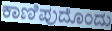
ಕಾಣಿಪುದೊಂದು